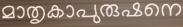
മാതൃകാപുരുഷനെ